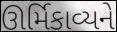
ઊર્મિકાવ્યને